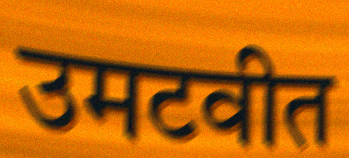
उमटवीत